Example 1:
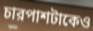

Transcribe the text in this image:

চারপাশটাকেও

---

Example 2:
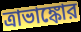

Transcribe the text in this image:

ত্রাভাঙ্কোর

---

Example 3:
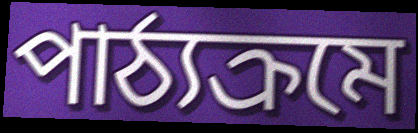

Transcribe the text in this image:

পাঠ্যক্রমে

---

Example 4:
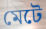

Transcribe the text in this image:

মেটে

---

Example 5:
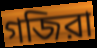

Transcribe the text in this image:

গজিরা